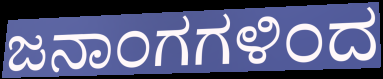
ಜನಾಂಗಗಳಿಂದ